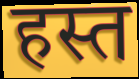
हस्त